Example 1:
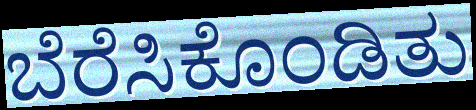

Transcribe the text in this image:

ಬೆರೆಸಿಕೊಂಡಿತು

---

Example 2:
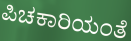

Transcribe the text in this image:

ಪಿಚಕಾರಿಯಂತೆ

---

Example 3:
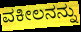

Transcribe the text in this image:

ವಕೀಲನನ್ನು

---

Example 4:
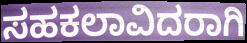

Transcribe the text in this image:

ಸಹಕಲಾವಿದರಾಗಿ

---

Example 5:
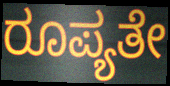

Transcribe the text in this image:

ರೂಪ್ಯತೇ